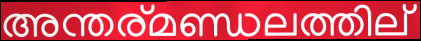
അന്തര്മണ്ഡലത്തില്